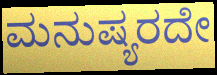
ಮನುಷ್ಯರದೇ